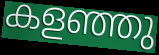
കളഞ്ഞു